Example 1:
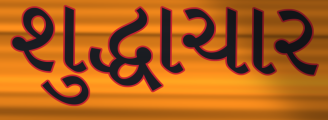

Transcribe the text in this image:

શુદ્ધાચાર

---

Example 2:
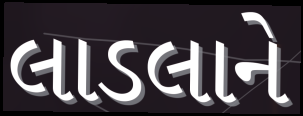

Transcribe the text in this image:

લાડલાને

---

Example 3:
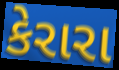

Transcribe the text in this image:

કેરારા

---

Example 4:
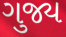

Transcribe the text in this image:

ગુજ્ય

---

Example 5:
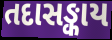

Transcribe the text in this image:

તદાસઙ્કાય